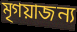
মৃগয়াজন্য